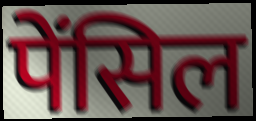
पेंसिल